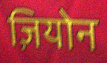
ज़ियोन